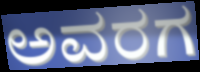
ಅವರಗ